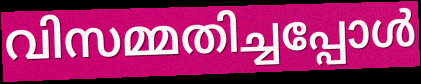
വിസമ്മതിച്ചപ്പോൾ